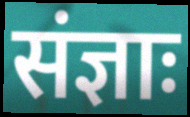
संज्ञाः